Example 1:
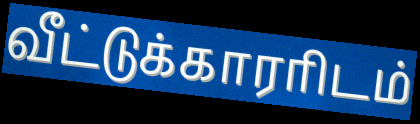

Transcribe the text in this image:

வீட்டுக்காரரிடம்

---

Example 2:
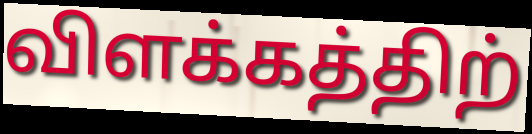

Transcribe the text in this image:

விளக்கத்திற்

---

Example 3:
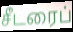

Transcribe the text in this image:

சீடரைப்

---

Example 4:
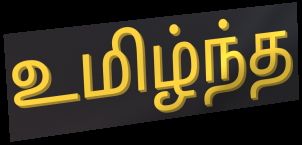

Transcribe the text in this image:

உமிழ்ந்த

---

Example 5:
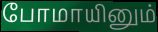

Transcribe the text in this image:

போமாயினும்